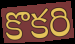
కొకరి